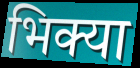
भिक्या